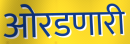
ओरडणारी